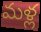
మళ్ల